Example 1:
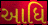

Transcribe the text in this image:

આધિ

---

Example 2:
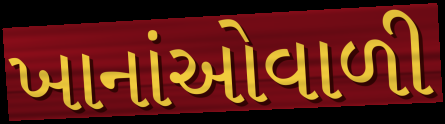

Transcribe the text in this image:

ખાનાંઓવાળી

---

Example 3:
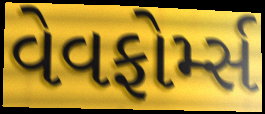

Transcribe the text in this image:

વેવફોર્મ્સ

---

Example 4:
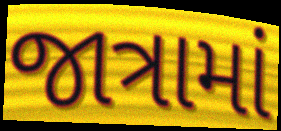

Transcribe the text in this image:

જાત્રામાં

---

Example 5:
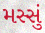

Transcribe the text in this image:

મસ્સું